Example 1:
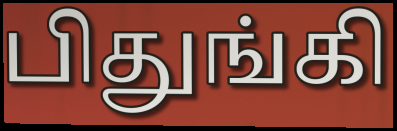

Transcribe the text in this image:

பிதுங்கி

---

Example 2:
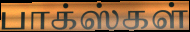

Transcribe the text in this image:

பாக்ஸ்கள்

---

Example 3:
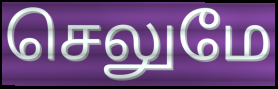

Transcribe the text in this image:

செலுமே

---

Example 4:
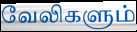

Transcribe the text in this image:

வேலிகளும்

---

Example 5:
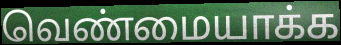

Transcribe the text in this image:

வெண்மையாக்க